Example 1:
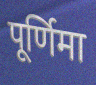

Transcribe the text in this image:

पूर्णिमा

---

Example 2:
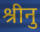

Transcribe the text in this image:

श्रीनु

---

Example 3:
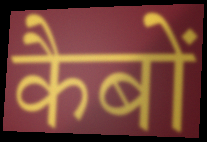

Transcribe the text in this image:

कैबों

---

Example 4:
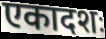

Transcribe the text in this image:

एकादशः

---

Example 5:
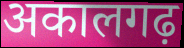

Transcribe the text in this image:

अकालगढ़